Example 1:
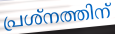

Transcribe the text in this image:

പ്രശ്നത്തിന്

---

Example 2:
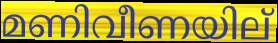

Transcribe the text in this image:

മണിവീണയില്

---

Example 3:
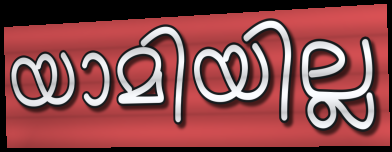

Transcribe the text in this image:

യാമിയില്ല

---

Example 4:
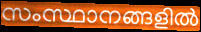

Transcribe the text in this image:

സംസ്ഥാനങ്ങളിൽ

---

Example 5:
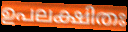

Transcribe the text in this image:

ഉപലക്ഷിതഃ